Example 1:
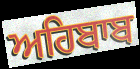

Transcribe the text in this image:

ਅਹਿਬਾਬ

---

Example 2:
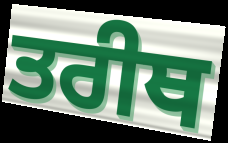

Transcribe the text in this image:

ਤਰੀਥ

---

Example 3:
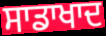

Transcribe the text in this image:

ਸਾਡਾਖਾਦ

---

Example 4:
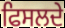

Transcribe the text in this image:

ਫਿਸਲਦੇ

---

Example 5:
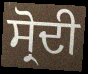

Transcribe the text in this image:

ਸ੍ਰੋਦੀ